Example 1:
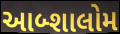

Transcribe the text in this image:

આબ્શાલોમ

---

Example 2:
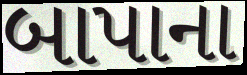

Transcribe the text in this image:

બાપાના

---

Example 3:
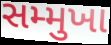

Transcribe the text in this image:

સમ્મુખા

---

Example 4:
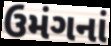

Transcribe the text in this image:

ઉમંગનાં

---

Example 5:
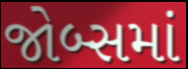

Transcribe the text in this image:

જોબ્સમાં